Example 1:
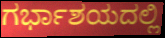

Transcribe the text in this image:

ಗರ್ಭಾಶಯದಲ್ಲಿ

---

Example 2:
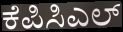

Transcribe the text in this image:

ಕೆಪಿಸಿಎಲ್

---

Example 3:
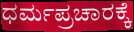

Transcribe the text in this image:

ಧರ್ಮಪ್ರಚಾರಕ್ಕೆ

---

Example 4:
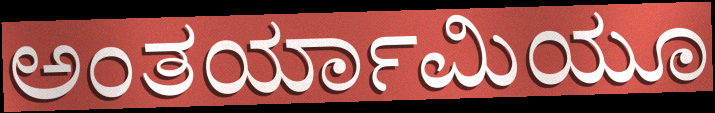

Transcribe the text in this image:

ಅಂತರ್ಯಾಮಿಯೂ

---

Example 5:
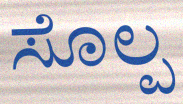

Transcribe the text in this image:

ಸೊಲ್ಪ